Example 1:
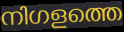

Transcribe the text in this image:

നിഗളത്തെ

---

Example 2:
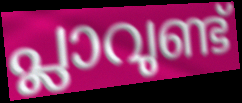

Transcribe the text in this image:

പ്ലാവുണ്ട്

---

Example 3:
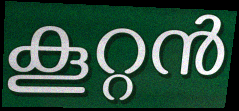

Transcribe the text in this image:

കൂറ്റൻ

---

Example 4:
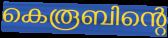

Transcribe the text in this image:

കെരൂബിന്റെ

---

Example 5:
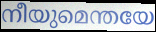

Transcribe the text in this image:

നീയുമെന്തയേ